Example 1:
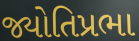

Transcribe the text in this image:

જ્યોતિપ્રભા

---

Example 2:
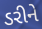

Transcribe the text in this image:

ડરીને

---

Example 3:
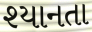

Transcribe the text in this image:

શ્યાનતા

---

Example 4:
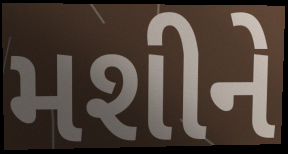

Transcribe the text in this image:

મશીને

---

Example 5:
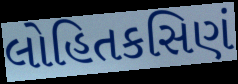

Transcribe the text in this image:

લોહિતકસિણં